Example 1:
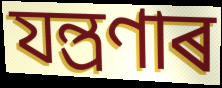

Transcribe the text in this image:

যন্ত্ৰণাৰ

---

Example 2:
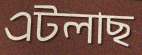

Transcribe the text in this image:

এটলাছ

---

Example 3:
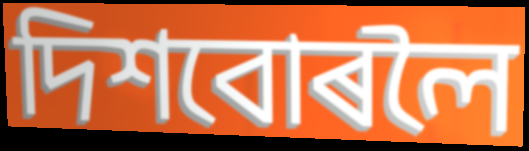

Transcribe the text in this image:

দিশবোৰলৈ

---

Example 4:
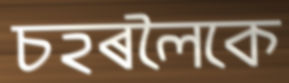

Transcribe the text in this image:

চহৰলৈকে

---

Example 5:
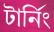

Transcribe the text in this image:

টাৰ্নিং